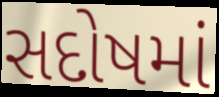
સદોષમાં